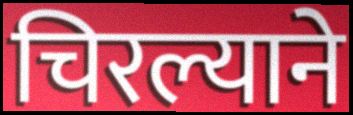
चिरल्याने